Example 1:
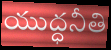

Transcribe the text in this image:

యుద్ధనీతి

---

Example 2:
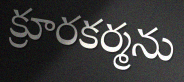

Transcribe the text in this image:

క్రూరకర్మను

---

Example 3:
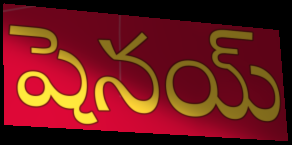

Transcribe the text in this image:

షెనయ్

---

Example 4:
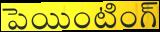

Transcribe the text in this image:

పెయింటింగ్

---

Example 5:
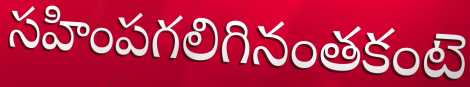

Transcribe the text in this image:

సహింపగలిగినంతకంటె